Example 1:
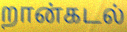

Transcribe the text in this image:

றான்கடல்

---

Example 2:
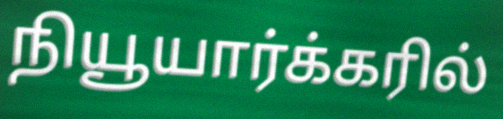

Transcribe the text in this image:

நியூயார்க்கரில்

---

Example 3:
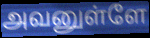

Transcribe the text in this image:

அவனுள்ளே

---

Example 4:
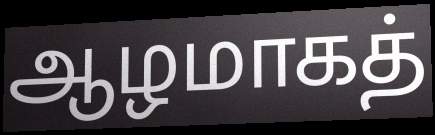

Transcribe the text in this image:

ஆழமாகத்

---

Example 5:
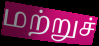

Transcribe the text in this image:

மற்றுச்